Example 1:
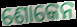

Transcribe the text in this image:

ଶୋକେନ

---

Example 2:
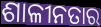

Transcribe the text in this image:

ଶାଳୀନତାର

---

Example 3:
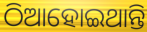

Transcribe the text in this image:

ଠିଆହୋଇଥାନ୍ତି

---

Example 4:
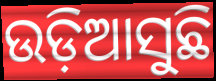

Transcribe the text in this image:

ଉଡ଼ିଆସୁଛି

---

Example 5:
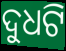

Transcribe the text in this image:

ଦୁଧଟି